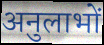
अनुलाभों